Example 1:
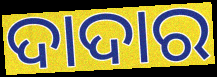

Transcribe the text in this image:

ଦାଦାର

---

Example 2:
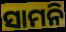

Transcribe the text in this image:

ସାମନି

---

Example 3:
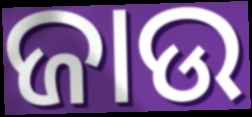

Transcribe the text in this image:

ଜାଉ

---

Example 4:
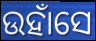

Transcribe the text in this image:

ଉହାଁସେ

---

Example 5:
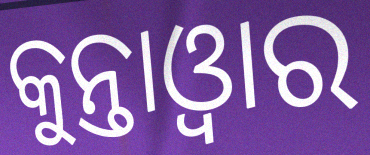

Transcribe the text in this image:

କୁନ୍ତାଓ୍ୱାର